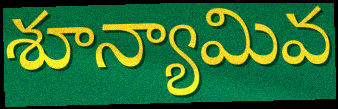
శూన్యామివ